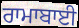
ਰਾਮਾਬਾਈ